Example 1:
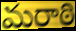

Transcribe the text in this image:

మరాఠి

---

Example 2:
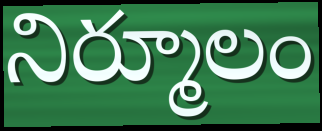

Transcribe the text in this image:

నిర్మూలం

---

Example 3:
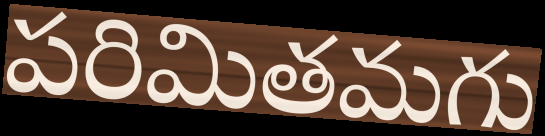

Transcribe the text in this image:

పరిమితమగు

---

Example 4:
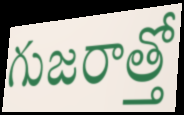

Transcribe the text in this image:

గుజరాత్తో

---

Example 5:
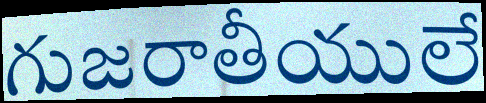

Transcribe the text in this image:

గుజరాతీయులే